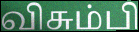
விசும்பி